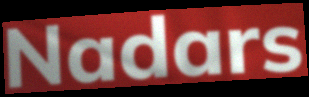
Nadars